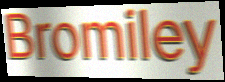
Bromiley